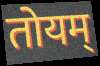
तोयम्